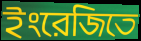
ইংরেজিতে